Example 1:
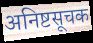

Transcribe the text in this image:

अनिष्टसूचक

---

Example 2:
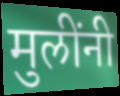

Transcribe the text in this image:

मुलींनी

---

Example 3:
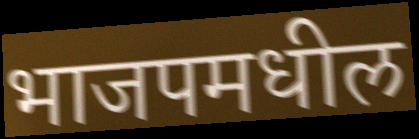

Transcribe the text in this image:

भाजपमधील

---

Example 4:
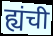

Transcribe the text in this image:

ह्यंची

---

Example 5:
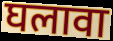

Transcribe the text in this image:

घलावा